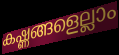
കഷ്ണങ്ങളെല്ലാം